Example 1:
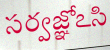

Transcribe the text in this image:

సర్వజ్ఞోఽసి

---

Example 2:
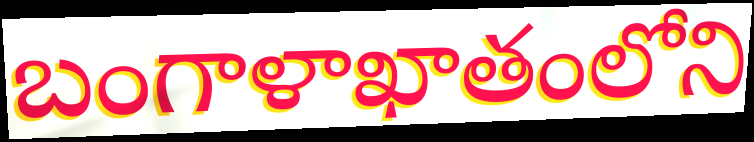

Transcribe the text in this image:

బంగాళాఖాతంలోని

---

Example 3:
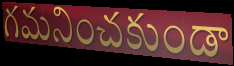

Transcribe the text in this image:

గమనించకుండా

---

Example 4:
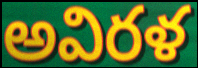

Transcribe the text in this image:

అవిరళ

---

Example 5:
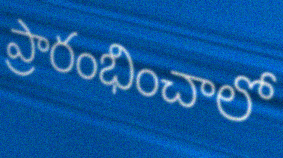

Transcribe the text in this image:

ప్రారంభించాలో